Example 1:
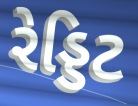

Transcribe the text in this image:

રેડ્ડિટ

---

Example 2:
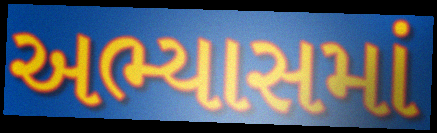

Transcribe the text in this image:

અભ્યાસમાં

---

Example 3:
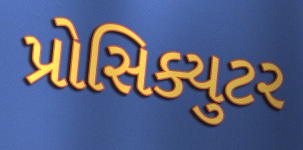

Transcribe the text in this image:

પ્રોસિક્યુટર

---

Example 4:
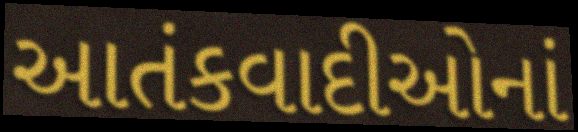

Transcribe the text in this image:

આતંકવાદીઓનાં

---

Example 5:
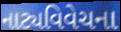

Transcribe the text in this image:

નાટ્યવિવેચના